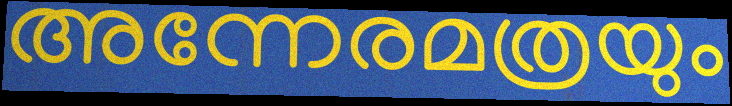
അന്നേരമത്രയും